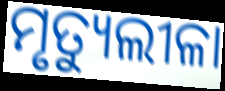
ମୃତ୍ୟୁଲୀଳା